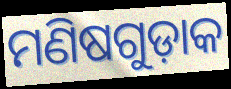
ମଣିଷଗୁଡ଼ାକ